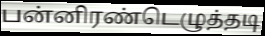
பன்னிரண்டெழுத்தடி